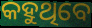
କହୁଥିବେ